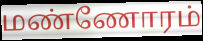
மண்ணோரம்